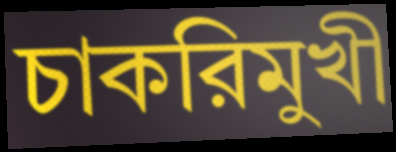
চাকরিমুখী